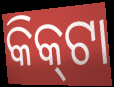
କିକ୍‍ଟା